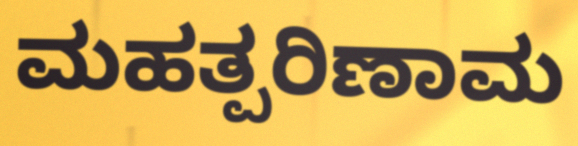
ಮಹತ್ಪರಿಣಾಮ